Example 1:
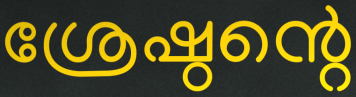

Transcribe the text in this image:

ശ്രേഷ്ഠന്റെ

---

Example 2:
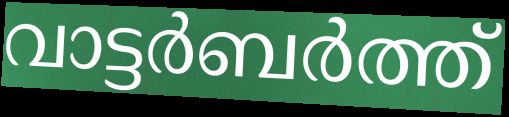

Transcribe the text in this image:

വാട്ടർബർത്ത്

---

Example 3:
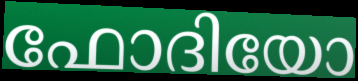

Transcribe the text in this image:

ഫോദിയോ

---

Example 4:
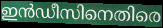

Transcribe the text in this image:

ഇൻഡീസിനെതിരെ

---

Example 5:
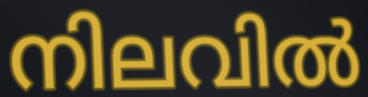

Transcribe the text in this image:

നിലവിൽ